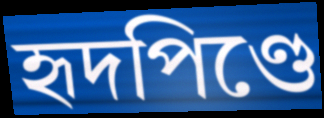
হৃদপিণ্ডে